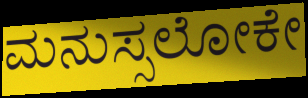
ಮನುಸ್ಸಲೋಕೇ